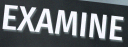
EXAMINE